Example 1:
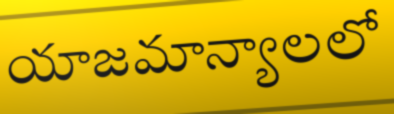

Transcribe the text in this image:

యాజమాన్యాలలో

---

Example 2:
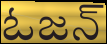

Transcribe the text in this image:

ఓజన్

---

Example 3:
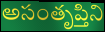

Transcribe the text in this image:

అసంతృప్తిని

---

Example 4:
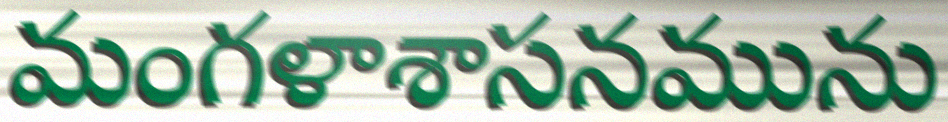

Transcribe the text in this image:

మంగళాశాసనమును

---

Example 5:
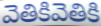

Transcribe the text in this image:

వెతికివెతికి